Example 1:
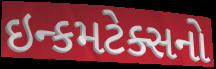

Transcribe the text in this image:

ઇન્કમટેક્સનો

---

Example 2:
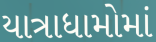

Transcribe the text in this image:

યાત્રાધામોમાં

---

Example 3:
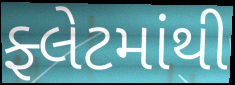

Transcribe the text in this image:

ફ્લેટમાંથી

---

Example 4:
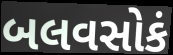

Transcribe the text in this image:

બલવસોકં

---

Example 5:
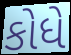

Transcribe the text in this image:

કોધે